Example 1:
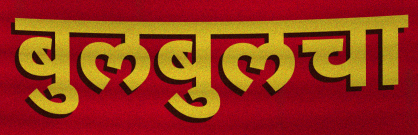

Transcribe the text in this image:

बुलबुलचा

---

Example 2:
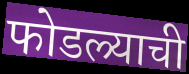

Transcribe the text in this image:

फोडल्याची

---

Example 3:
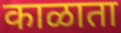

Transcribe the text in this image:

काळाता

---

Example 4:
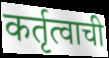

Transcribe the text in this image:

कर्तृत्वाची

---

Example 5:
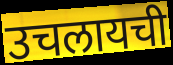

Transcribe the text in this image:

उचलायची